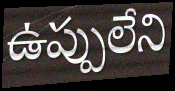
ఉప్పులేని